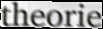
theorie